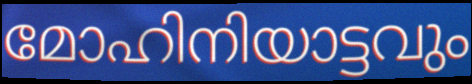
മോഹിനിയാട്ടവും